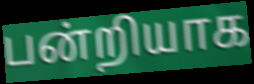
பன்றியாக